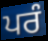
ਪਰੰ